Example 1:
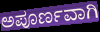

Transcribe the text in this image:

ಅಪೂರ್ಣವಾಗಿ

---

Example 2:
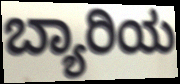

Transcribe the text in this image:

ಬ್ಯಾರಿಯ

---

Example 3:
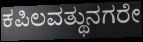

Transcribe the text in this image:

ಕಪಿಲವತ್ಥುನಗರೇ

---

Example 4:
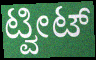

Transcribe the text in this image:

ಟ್ವೀಟ್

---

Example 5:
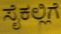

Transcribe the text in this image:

ಸೈಕಲ್ಲಿಗೆ